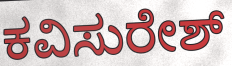
ಕವಿಸುರೇಶ್